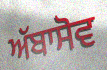
ਅੱਬਾਸੋਵ